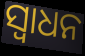
ସ୍ଵାଧନ